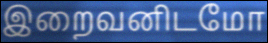
இறைவனிடமோ